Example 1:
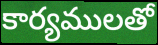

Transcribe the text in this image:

కార్యములతో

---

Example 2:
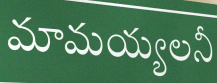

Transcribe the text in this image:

మామయ్యలనీ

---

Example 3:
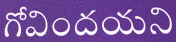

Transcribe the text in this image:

గోవిందయని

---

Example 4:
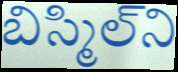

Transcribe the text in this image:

బిస్మిల్‌ని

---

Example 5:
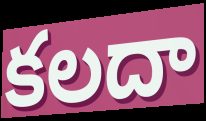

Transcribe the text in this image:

కలదా